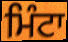
ਮਿੰਟਾ